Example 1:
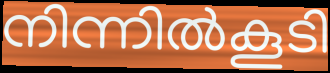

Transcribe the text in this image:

നിന്നിൽകൂടി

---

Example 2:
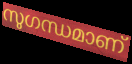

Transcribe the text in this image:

സുഗന്ധമാണ്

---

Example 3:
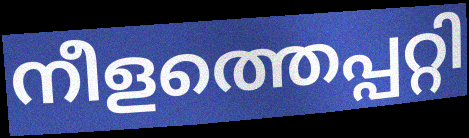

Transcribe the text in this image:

നീളത്തെപ്പറ്റി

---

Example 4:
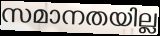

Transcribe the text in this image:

സമാനതയില്ല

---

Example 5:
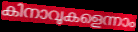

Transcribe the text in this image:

കിനാവുകളെന്നാം